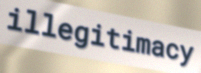
illegitimacy